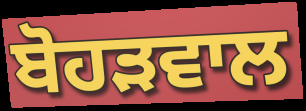
ਬੋਹੜਵਾਲ